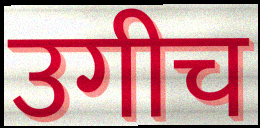
उगीच